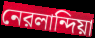
নেরলান্দিয়া